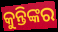
କୁନ୍ତିଙ୍କର